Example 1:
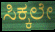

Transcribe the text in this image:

ಸಿಕ್ಕಲೇ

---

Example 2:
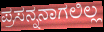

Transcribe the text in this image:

ಪ್ರಸನ್ನನಾಗಲಿಲ್ಲ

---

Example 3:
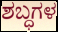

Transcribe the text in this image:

ಶಬ್ಧಗಳ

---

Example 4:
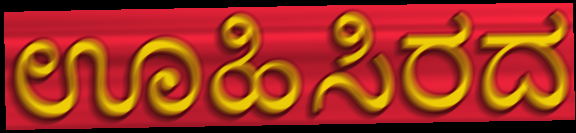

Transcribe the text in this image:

ಊಹಿಸಿರದ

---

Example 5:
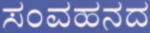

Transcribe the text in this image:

ಸಂವಹನದ